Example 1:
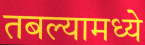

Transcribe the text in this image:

तबल्यामध्ये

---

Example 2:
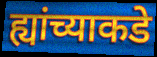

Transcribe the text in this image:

ह्यांच्याकडे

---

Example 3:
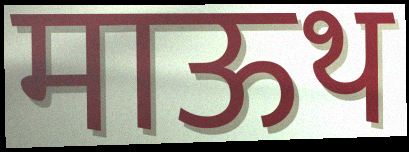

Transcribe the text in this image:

माऊथ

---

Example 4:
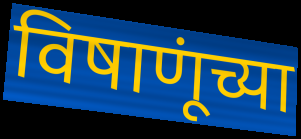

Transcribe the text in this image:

विषाणूंच्या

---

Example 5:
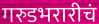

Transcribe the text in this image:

गरुडभरारीचं